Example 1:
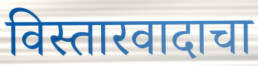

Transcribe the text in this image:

विस्तारवादाचा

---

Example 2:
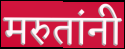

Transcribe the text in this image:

मरुतांनी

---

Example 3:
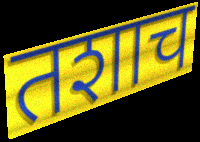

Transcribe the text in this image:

तशाच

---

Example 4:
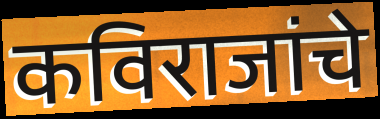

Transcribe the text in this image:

कविराजांचे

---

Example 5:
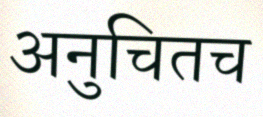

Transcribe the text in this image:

अनुचितच